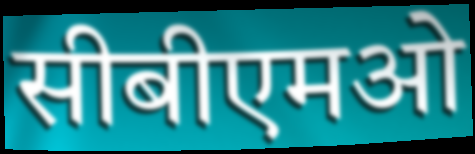
सीबीएमओ